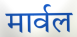
मार्वल